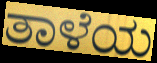
ತಾಳೆಯ